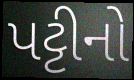
પટ્ટીનો